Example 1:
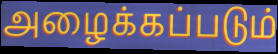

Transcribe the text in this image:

அழைக்கப்படும்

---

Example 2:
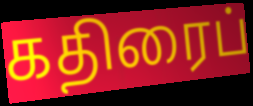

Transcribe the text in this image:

கதிரைப்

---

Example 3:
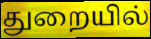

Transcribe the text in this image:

துறையில்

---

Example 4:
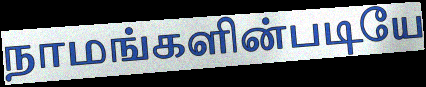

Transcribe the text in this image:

நாமங்களின்படியே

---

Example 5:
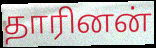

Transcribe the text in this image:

தாரினன்